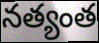
నత్యంత